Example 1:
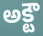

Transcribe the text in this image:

అక్టౌ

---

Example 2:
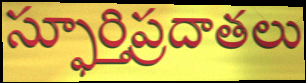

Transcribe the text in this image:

స్ఫూర్తిప్రదాతలు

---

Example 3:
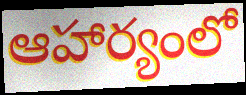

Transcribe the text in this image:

ఆహార్యంలో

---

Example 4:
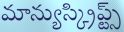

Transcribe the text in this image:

మాన్యుస్క్రిప్ట్స్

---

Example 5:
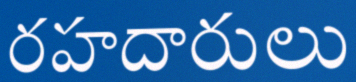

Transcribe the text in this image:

రహదారులు